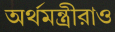
অর্থমন্ত্রীরাও